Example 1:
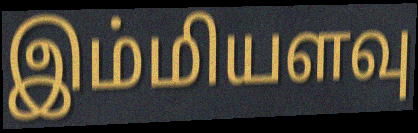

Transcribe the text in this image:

இம்மியளவு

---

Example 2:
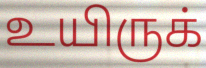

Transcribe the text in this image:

உயிருக்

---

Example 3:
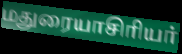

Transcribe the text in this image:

மதுரையாசிரியர்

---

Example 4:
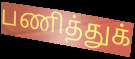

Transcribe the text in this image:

பணித்துக்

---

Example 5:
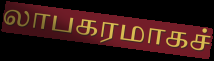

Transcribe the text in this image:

லாபகரமாகச்